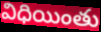
విధియింతు